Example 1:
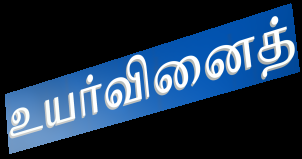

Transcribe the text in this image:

உயர்வினைத்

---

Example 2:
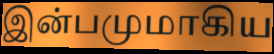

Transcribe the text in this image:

இன்பமுமாகிய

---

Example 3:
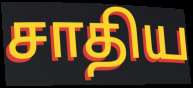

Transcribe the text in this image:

சாதிய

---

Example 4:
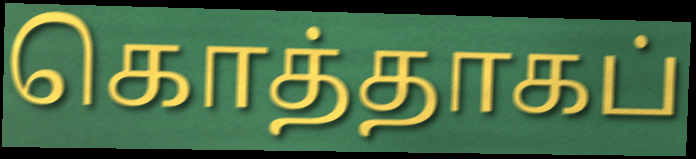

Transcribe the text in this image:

கொத்தாகப்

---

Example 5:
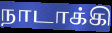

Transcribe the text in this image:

நாடாக்கி